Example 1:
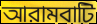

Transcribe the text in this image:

আরামবাটি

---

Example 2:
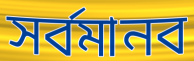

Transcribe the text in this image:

সর্বমানব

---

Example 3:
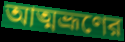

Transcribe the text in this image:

আত্মভ্রূণের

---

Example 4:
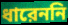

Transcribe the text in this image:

ধারেননি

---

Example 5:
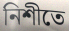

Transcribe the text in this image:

নিশীতে